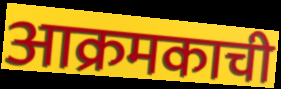
आक्रमकाची